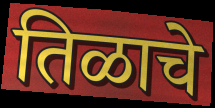
तिळाचे